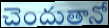
చెందుతానో